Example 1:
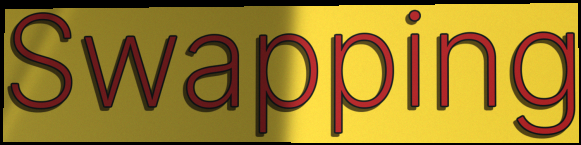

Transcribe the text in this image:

Swapping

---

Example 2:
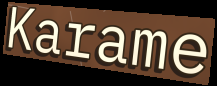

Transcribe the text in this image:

Karame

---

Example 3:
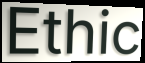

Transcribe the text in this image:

Ethic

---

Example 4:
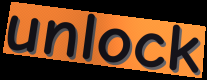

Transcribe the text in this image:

unlock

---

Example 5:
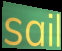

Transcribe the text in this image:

sail